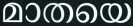
മാതയെ